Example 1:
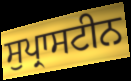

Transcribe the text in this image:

ਸੁਪ੍ਰਾਸਟੀਨ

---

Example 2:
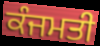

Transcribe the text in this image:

ਕੰਜਮਤੀ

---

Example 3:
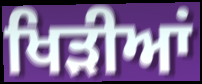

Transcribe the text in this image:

ਖਿੜੀਆਂ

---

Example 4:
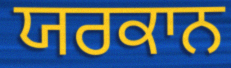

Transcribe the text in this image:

ਯਰਕਾਨ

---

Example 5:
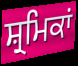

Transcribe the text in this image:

ਸ਼੍ਰਮਿਕਾਂ